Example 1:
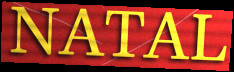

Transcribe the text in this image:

NATAL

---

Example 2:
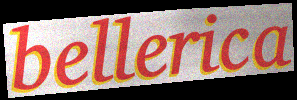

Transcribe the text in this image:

bellerica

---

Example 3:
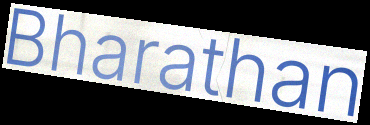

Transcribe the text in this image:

Bharathan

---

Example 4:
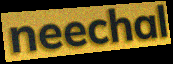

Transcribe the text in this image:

neechal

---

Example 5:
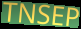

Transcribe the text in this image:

TNSEP